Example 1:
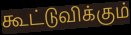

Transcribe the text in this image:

கூட்டுவிக்கும்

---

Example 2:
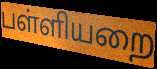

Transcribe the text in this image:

பள்ளியறை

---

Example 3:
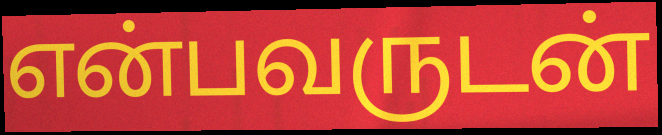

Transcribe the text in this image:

என்பவருடன்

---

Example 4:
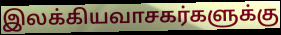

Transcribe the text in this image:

இலக்கியவாசகர்களுக்கு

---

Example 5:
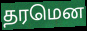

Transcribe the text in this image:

தரமென